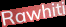
Rawhiti